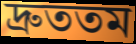
দ্রুততম